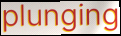
plunging